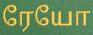
ரேயோ